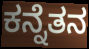
ಕನ್ನೆತನ